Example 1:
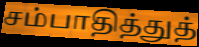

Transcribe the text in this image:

சம்பாதித்துத்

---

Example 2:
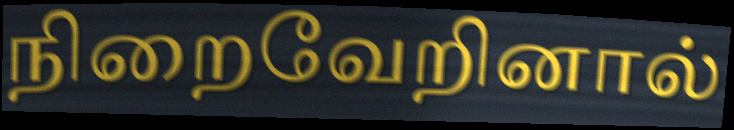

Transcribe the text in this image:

நிறைவேறினால்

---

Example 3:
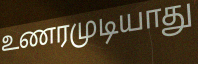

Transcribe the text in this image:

உணரமுடியாது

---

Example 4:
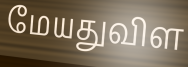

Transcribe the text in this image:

மேயதுவிள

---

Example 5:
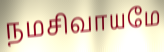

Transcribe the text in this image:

நமசிவாயமே